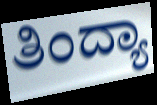
ತಿಂದ್ಯಾ